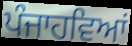
ਪੰਜਾਹਵਿਆਂ